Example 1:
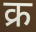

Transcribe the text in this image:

क्र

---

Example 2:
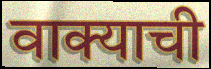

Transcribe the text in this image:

वाक्याची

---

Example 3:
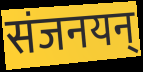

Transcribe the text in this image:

संजनयन्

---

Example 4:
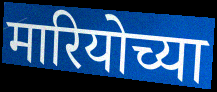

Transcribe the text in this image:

मारियोच्या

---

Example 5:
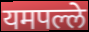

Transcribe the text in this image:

यमपल्ले